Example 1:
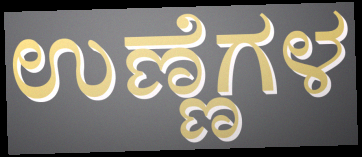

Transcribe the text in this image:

ಉಣ್ಣೆಗಳ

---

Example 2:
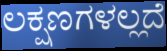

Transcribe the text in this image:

ಲಕ್ಷಣಗಳಲ್ಲದೆ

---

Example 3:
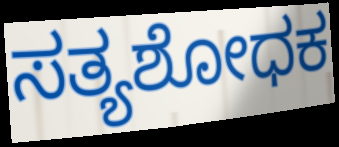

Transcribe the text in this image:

ಸತ್ಯಶೋಧಕ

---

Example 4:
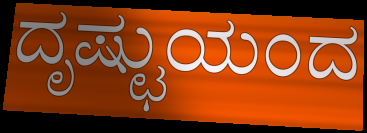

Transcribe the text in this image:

ದೃಷ್ಟುಯಂದ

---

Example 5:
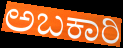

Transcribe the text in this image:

ಅಬಕಾರಿ